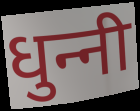
धुन्नी